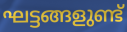
ഘട്ടങ്ങളുണ്ട്